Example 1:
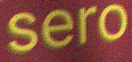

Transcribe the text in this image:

sero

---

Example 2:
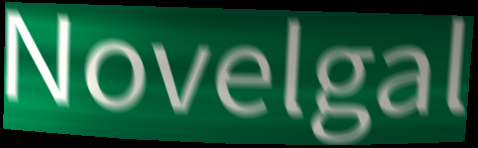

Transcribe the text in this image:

Novelgal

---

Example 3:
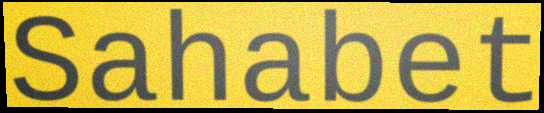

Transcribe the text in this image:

Sahabet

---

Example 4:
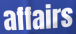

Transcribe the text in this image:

affairs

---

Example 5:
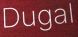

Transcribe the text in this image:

Dugal